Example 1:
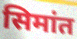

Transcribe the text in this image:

सिमांत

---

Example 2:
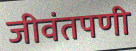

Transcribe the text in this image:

जीवंतपणी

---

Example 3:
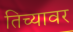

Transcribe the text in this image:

तिच्यावर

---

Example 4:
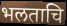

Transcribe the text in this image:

भलताचि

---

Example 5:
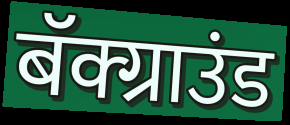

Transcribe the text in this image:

बॅक्ग्राउंड